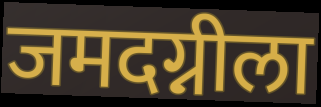
जमदग्नीला